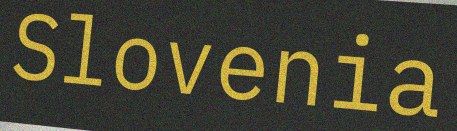
Slovenia